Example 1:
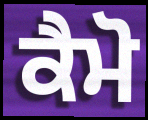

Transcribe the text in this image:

ਕੈਮੋ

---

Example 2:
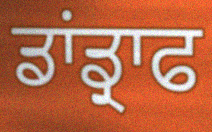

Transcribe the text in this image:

ਡਾਂਡ੍ਰਾਫ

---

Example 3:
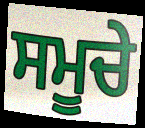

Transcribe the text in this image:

ਸਮੂਚੇ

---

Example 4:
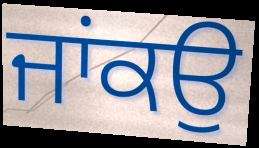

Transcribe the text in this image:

ਜਾਂਕਉ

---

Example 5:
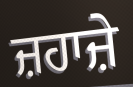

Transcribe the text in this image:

ਜ਼ਹਾਜ਼ੇ